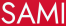
SAMI